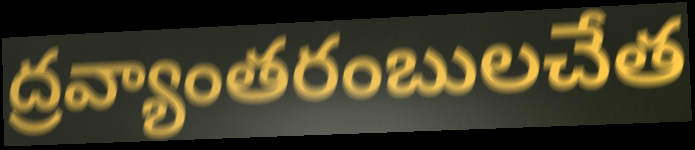
ద్రవ్యాంతరంబులచేత